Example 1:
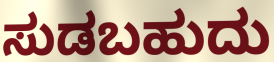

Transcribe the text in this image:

ಸುಡಬಹುದು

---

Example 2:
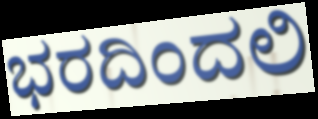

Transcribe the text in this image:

ಭರದಿಂದಲಿ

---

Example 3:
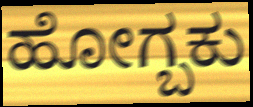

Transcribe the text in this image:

ಹೋಗ್ಬಕು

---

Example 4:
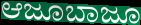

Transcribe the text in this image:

ಆಜೂಬಾಜೂ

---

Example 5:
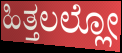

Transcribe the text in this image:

ಹಿತ್ತಲಲ್ಲೋ